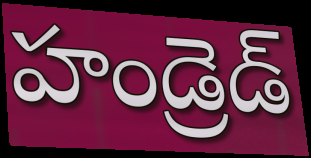
హండ్రెడ్